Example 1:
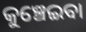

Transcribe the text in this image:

କୁଞ୍ଚେଇବା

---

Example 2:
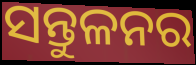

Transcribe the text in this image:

ସନ୍ତୁଳନର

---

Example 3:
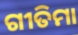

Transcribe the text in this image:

ଗୀତିମା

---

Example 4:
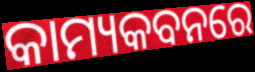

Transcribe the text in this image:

କାମ୍ୟକବନରେ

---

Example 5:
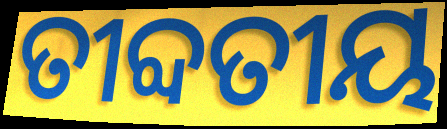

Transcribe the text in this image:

ତୀବ୍ଦତୀୟ